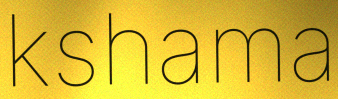
kshama